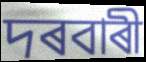
দৰবাৰী